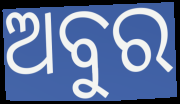
ଅବୁର